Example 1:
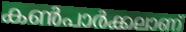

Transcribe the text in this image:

കൺപാർക്കലാണ്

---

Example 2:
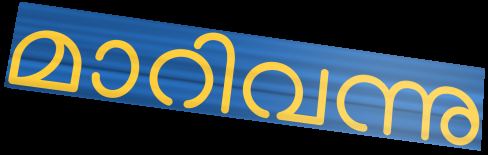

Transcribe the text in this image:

മാറിവന്നു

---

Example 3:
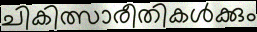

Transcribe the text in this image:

ചികിത്സാരീതികൾക്കും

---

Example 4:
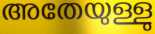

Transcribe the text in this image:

അതേയുള്ളു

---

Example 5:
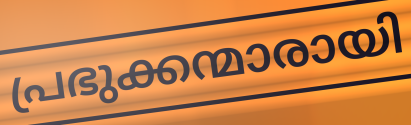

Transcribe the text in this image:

പ്രഭുക്കന്മാരായി